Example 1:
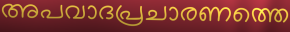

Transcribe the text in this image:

അപവാദപ്രചാരണത്തെ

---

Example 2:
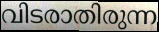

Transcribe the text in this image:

വിടരാതിരുന്ന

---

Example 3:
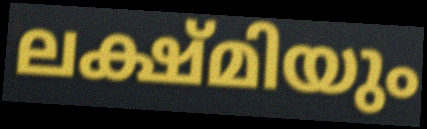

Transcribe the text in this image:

ലക്ഷ്മിയും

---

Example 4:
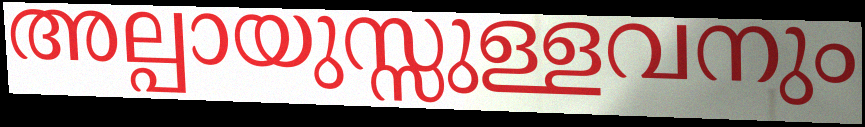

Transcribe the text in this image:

അല്പായുസ്സുള്ളവനും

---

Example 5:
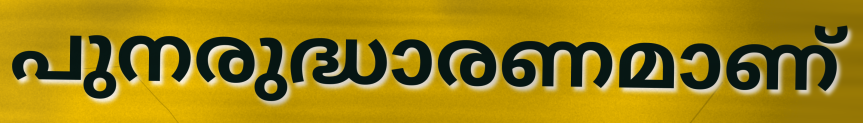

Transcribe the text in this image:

പുനരുദ്ധാരണമാണ്